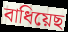
বাধিয়েছ